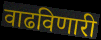
वाढविणारी